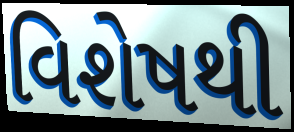
વિશેષથી